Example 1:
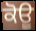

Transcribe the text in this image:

ਕੋਊ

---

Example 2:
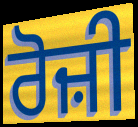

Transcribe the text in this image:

ਰੋਜ਼ੀ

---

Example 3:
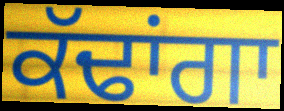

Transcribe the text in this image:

ਕੱਢਾਂਗਾ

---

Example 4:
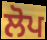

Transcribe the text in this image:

ਲੋਪ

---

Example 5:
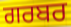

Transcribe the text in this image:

ਗਰਬਰ